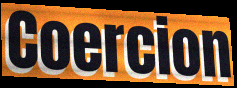
Coercion